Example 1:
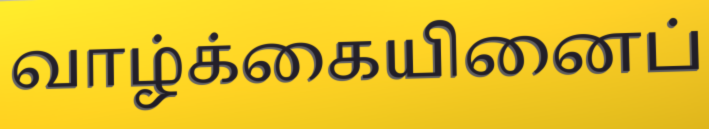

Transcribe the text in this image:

வாழ்க்கையினைப்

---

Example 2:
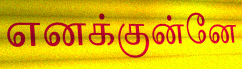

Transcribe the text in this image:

எனக்குன்னே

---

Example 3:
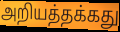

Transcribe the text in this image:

அறியத்தக்கது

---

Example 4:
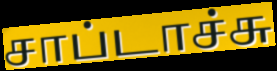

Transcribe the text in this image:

சாப்டாச்சு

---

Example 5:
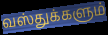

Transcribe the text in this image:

வஸ்துக்களும்